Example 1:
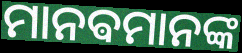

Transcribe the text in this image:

ମାନଵମାନଙ୍କ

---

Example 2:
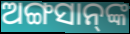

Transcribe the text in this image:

ଅଙ୍ଗସାନ୍‌ଙ୍କ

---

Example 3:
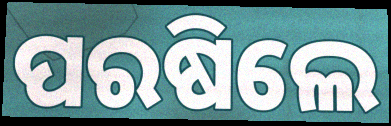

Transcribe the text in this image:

ପରଷିଲେ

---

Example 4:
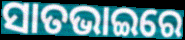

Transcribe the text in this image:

ସାତଭାଇରେ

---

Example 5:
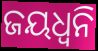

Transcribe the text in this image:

ଜୟଧ୍ୱନି